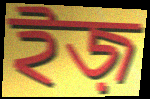
ইজ়